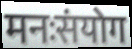
मनःसंयोग